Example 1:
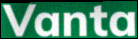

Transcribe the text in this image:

Vanta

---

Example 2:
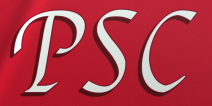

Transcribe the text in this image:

PSC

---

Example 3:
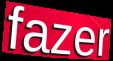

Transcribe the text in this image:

fazer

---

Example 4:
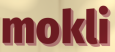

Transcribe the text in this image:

mokli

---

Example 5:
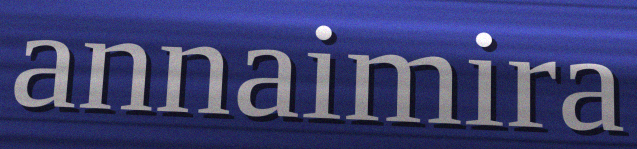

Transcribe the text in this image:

annaimira